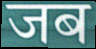
जब